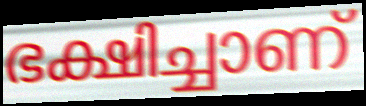
ഭക്ഷിച്ചാണ്